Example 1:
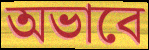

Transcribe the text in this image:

অভাবে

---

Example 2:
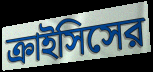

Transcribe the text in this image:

ক্রাইসিসের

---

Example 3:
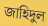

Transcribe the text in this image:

জাহিদুল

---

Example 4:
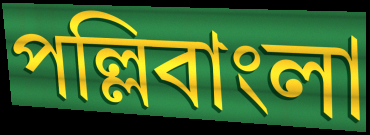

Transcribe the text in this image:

পল্লিবাংলা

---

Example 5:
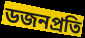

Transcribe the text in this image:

ডজনপ্রতি